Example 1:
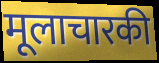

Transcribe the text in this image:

मूलाचारकी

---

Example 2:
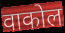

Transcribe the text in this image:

वाकोल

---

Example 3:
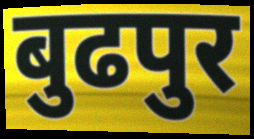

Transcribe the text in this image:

बुढपुर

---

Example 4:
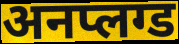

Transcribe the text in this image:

अनप्लग्ड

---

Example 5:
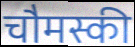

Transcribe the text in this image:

चौमस्की